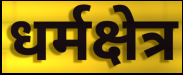
धर्मक्षेत्र